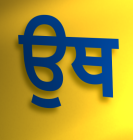
ਉਥ